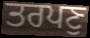
ਤਰਪਣੁ